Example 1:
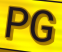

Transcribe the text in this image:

PG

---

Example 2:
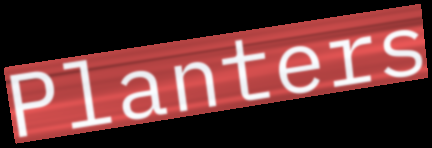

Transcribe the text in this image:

Planters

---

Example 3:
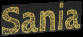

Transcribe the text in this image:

Sania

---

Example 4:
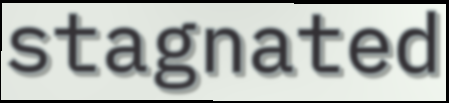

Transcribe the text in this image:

stagnated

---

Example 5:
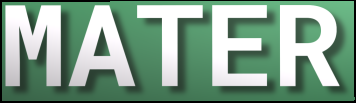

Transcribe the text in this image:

MATER